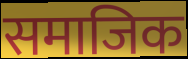
समाजिक